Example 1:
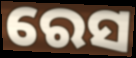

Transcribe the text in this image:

ରେସ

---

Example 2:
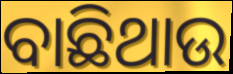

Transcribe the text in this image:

ବାଛିଥାଉ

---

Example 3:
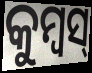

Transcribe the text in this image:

କୁମ୍ବସ୍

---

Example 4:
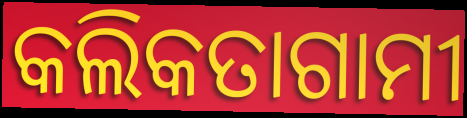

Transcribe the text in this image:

କଲିକତାଗାମୀ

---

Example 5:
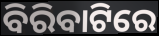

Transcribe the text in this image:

ବିରିବାଟିରେ